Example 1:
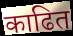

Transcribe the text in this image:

काढित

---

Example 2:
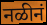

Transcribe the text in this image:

नळीनं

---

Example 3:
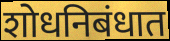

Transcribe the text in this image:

शोधनिबंधात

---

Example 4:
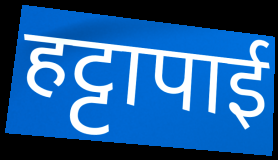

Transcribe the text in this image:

हट्टापाई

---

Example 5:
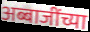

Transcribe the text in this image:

अब्बाजींच्या